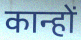
कान्हों